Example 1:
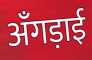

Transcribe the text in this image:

अँगड़ाई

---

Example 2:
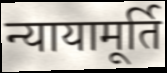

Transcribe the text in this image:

न्यायामूर्ति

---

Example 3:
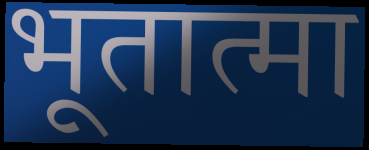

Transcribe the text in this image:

भूतात्मा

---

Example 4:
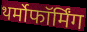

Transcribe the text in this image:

थर्मोफॉर्मिंग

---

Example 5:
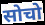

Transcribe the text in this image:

सोचो